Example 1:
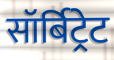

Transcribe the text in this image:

सॉर्बिट्रेट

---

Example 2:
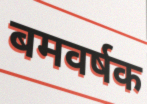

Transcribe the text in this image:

बमवर्षक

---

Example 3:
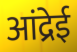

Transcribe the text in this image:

आंद्रेई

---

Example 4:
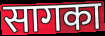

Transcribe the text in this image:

सागका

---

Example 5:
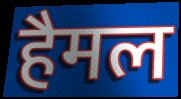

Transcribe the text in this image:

हैमल